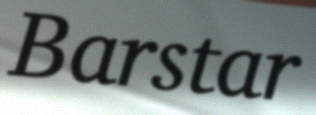
Barstar